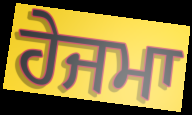
ਹੇਜਮਾ